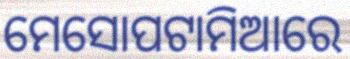
ମେସୋପଟାମିଆରେ